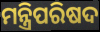
ମନ୍ତ୍ରିପରିଷଦ